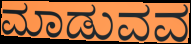
ಮಾಡುವವ